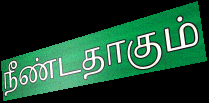
நீண்டதாகும்